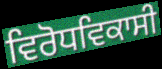
ਵਿਰੋਧਵਿਕਾਸੀ